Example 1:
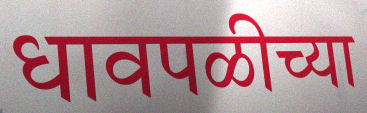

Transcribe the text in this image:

धावपळीच्या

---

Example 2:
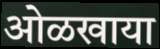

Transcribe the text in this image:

ओळखाया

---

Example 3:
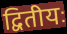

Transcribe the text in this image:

द्वितीयः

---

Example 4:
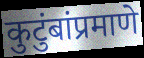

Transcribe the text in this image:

कुटुंबांप्रमाणे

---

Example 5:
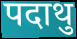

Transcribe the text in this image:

पदाथु